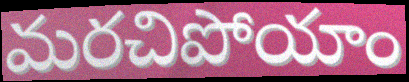
మరచిపోయాం